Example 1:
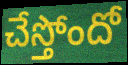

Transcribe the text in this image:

చేస్తోందో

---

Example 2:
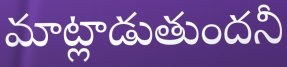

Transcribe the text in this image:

మాట్లాడుతుందనీ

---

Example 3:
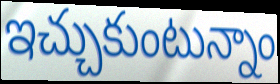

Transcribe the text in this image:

ఇచ్చుకుంటున్నాం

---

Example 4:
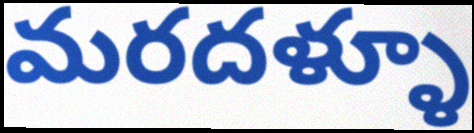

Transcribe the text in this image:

మరదళ్ళూ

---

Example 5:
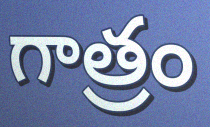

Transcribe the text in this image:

గాత్రం